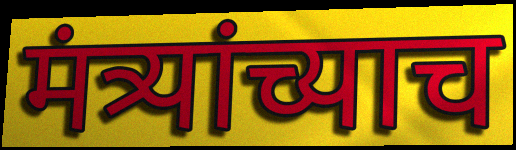
मंत्र्यांच्याच